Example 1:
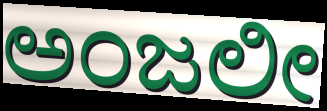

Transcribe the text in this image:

ಅಂಜಲೀ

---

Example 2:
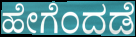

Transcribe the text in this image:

ಹೇಗೆಂದಡೆ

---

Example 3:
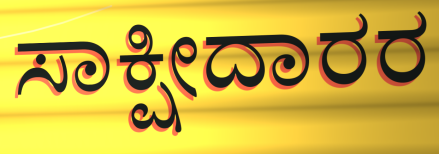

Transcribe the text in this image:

ಸಾಕ್ಷೀದಾರರ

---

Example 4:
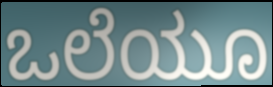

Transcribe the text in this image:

ಒಲೆಯೂ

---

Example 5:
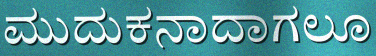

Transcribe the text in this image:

ಮುದುಕನಾದಾಗಲೂ